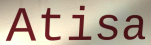
Atisa